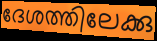
ദേശത്തിലേക്കു